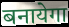
बनायेगा